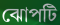
ঝোপটি